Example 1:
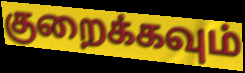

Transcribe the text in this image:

குறைக்கவும்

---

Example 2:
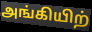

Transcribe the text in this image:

அங்கியிற்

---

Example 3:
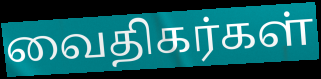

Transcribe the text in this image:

வைதிகர்கள்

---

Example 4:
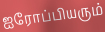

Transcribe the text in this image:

ஐரோப்பியரும்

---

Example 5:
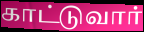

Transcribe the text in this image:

காட்டுவார்